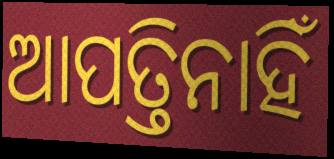
ଆପତ୍ତିନାହିଁ